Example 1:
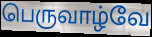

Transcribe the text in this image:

பெருவாழ்வே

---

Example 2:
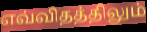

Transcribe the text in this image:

எவ்விதத்திலும்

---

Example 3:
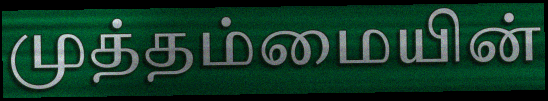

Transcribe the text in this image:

முத்தம்மையின்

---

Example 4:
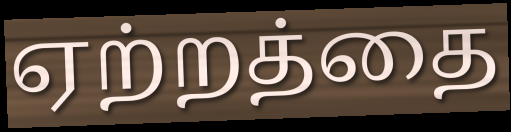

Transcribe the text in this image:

ஏற்றத்தை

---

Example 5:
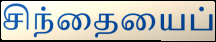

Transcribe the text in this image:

சிந்தையைப்